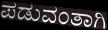
ಪಡುವಂತಾಗಿ